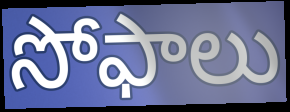
సోఫాలు